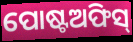
ପୋଷ୍ଟଅଫିସ୍